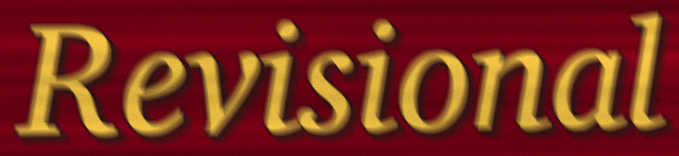
Revisional